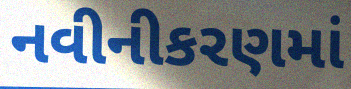
નવીનીકરણમાં